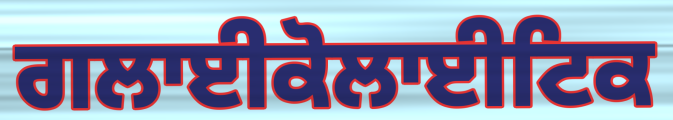
ਗਲਾਈਕੋਲਾਈਟਿਕ